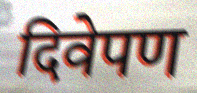
दिवेपण